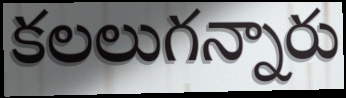
కలలుగన్నారు